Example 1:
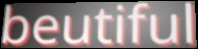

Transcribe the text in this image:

beutiful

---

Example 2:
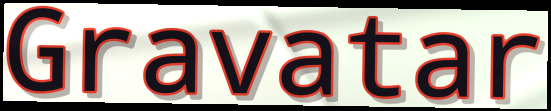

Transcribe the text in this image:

Gravatar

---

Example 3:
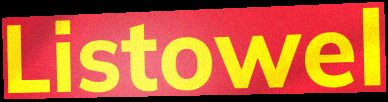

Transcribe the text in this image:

Listowel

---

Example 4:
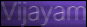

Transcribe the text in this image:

Vijayam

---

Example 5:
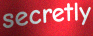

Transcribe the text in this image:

secretly